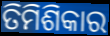
ତିମିଶିକାର